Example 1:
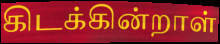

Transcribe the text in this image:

கிடக்கின்றாள்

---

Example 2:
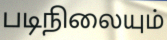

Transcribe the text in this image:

படிநிலையும்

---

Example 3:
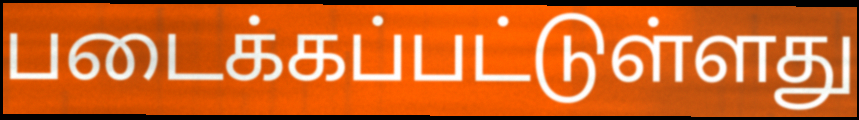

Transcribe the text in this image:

படைக்கப்பட்டுள்ளது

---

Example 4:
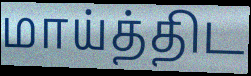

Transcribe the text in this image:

மாய்த்திட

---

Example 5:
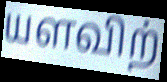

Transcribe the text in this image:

யளவிற்